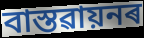
বাস্তৱায়নৰ